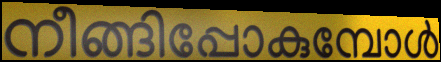
നീങ്ങിപ്പോകുമ്പോൾ